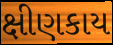
ક્ષીણકાય